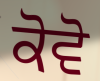
ਕੋਵੋ